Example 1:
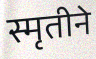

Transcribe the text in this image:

स्मृतीने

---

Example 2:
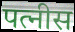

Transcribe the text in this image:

पत्‍नीस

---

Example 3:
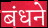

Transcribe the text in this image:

बंधने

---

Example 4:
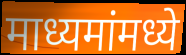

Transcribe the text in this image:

माध्यमांमध्ये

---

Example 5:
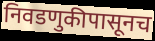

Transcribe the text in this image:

निवडणुकीपासूनच